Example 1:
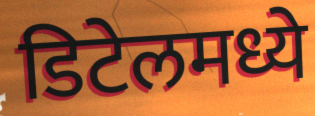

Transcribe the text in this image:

डिटेलमध्ये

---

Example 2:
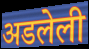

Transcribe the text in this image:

अडलेली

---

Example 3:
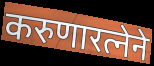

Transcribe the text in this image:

करुणारत्नेने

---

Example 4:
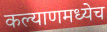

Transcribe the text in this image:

कल्याणमध्येच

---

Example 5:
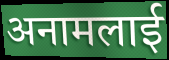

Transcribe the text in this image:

अनामलाई